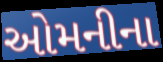
ઓમનીના